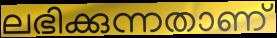
ലഭിക്കുന്നതാണ്